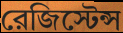
রেজিস্টেন্স